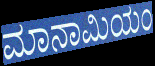
ಮಾನಾಮಿಯಂ